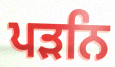
ਪੜਨਿ